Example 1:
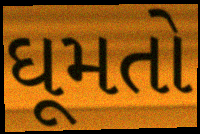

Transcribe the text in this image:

ઘૂમતો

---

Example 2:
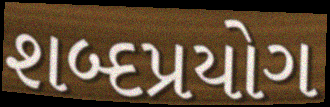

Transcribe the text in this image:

શબ્દપ્રયોગ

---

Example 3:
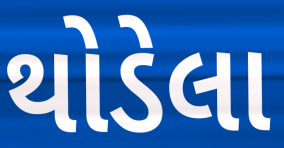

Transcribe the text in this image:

થોડેલા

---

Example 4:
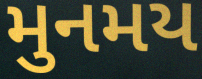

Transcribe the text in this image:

મુનમય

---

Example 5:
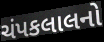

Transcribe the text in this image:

ચંપકલાલનો